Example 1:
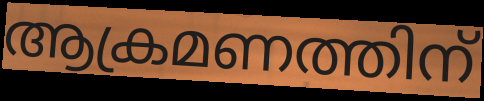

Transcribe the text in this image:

ആക്രമണത്തിന്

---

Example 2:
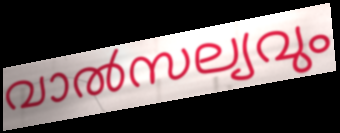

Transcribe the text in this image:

വാൽസല്യവും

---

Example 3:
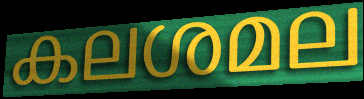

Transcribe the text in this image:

കലശമല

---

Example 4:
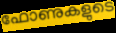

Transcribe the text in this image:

ഫോണുകളുടെ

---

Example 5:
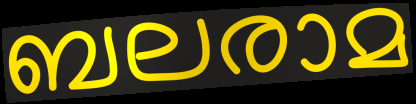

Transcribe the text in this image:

ബലരാമ